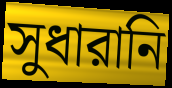
সুধারানি